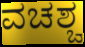
ವಚಶ್ಚ